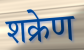
शक्रेण